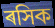
ৰসিক